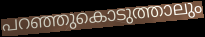
പറഞ്ഞുകൊടുത്താലും